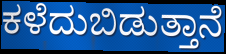
ಕಳೆದುಬಿಡುತ್ತಾನೆ